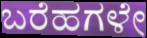
ಬರೆಹಗಳೇ